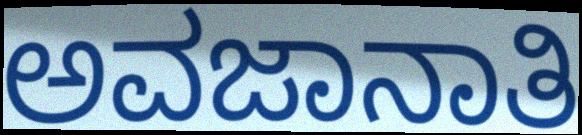
ಅವಜಾನಾತಿ